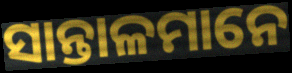
ସାନ୍ତାଳମାନେ